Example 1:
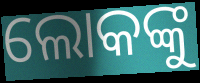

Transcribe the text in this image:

ଲୋକଙ୍କୁ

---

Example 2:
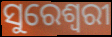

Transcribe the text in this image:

ସୁରେଶ୍ଵରୀ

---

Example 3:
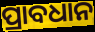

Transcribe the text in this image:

ପ୍ରାବଧାନ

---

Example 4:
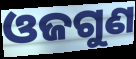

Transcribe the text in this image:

ଓଜଗୁଣ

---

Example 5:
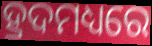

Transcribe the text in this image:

ହ୍ରଦମଧ୍ୟରେ